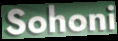
Sohoni